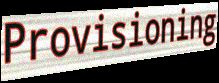
Provisioning